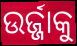
ଉର୍ଜ୍ଜାକୁ